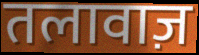
तलावाज़